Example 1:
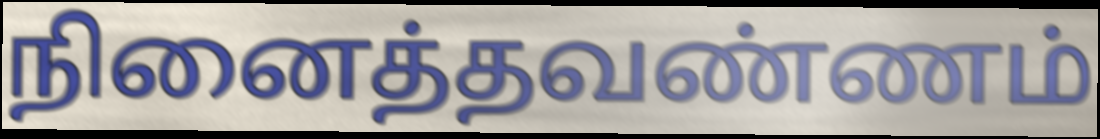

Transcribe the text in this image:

நினைத்தவண்ணம்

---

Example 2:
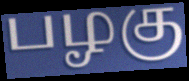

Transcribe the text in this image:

பழகு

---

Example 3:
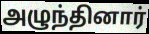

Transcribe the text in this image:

அழுந்தினார்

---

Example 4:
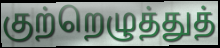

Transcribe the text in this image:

குற்றெழுத்துத்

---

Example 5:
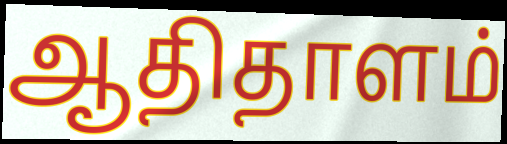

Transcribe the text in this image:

ஆதிதாளம்